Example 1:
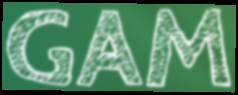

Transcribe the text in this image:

GAM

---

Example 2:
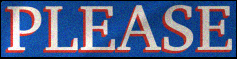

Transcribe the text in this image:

PLEASE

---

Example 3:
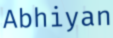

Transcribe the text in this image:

Abhiyan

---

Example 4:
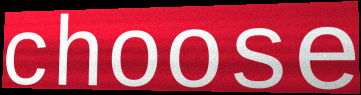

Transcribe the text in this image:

choose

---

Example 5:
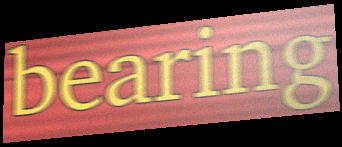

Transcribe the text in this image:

bearing